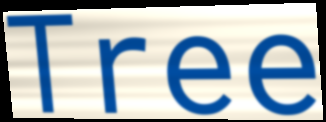
Tree